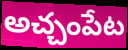
అచ్చంపేట